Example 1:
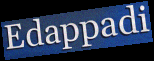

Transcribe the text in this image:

Edappadi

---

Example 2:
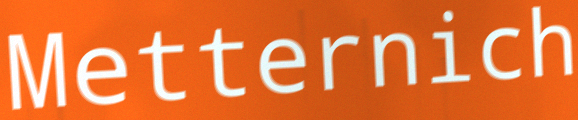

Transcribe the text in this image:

Metternich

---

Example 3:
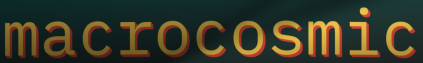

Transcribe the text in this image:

macrocosmic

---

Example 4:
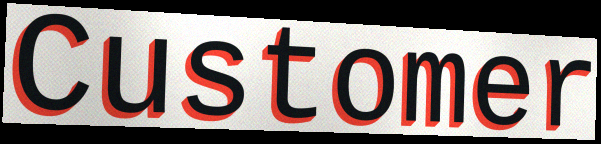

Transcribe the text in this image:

Customer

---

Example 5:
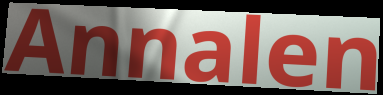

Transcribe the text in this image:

Annalen